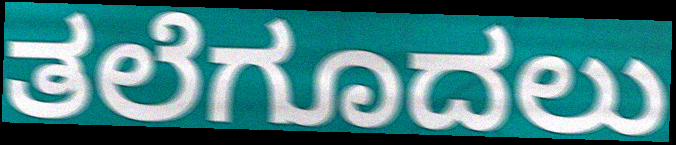
ತಲೆಗೂದಲು